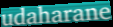
udaharane